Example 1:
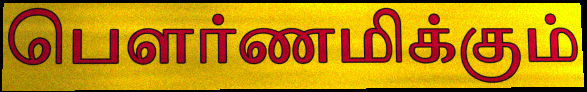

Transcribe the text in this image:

பௌர்ணமிக்கும்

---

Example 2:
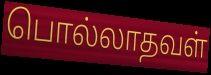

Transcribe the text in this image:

பொல்லாதவள்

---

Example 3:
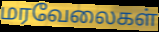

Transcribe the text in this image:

மரவேலைகள்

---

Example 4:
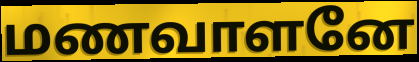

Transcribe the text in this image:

மணவாளனே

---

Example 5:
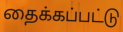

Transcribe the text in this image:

தைக்கப்பட்டு